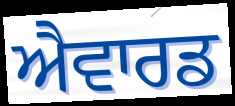
ਐਵਾਰਡ